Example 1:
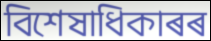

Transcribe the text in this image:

বিশেষাধিকাৰৰ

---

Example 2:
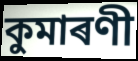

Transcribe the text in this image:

কুমাৰণী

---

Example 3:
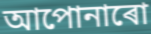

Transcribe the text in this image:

আপোনাৰো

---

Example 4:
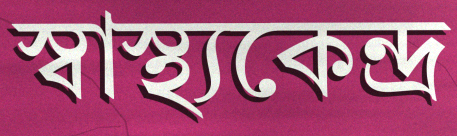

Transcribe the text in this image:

স্বাস্থ্যকেন্দ্ৰ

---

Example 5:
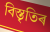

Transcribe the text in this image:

বিস্তৃতিৰ